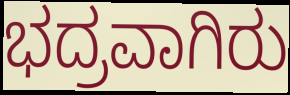
ಭದ್ರವಾಗಿರು